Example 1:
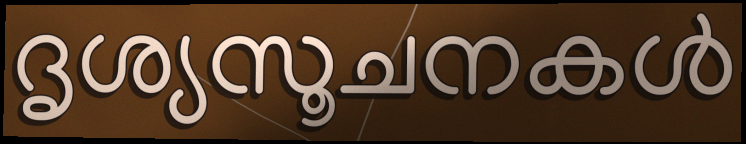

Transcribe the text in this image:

ദൃശ്യസൂചനകൾ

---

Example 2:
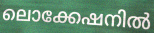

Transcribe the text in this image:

ലൊക്കേഷനിൽ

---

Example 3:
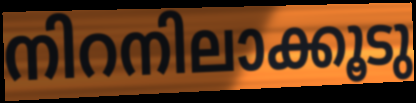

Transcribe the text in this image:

നിറനിലാക്കൂടു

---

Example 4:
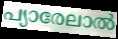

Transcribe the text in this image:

പ്യാരേലാൽ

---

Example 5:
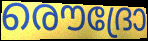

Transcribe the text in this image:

രൌദ്രോ